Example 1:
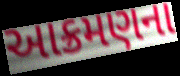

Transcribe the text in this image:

આક્રમણના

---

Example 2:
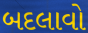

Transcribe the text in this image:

બદલાવો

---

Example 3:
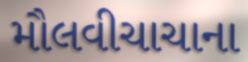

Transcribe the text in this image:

મૌલવીચાચાના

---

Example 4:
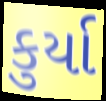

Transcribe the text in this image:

કુર્યા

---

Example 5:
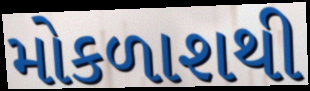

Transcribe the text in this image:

મોકળાશથી